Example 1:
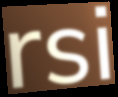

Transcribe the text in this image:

rsi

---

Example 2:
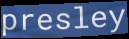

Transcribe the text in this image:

presley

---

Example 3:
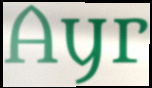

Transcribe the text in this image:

Ayr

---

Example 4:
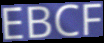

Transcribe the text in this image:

EBCF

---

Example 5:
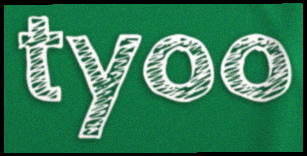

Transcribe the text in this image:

tyoo